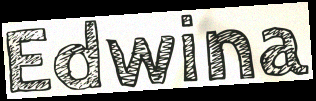
Edwina